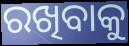
ରଖିବାକୁ